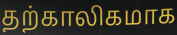
தற்காலிகமாக